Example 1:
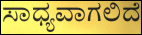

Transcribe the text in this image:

ಸಾಧ್ಯವಾಗಲಿದೆ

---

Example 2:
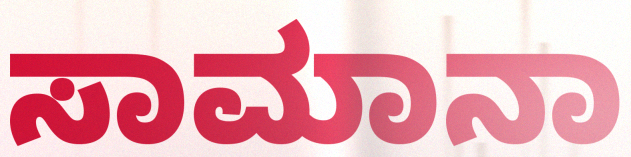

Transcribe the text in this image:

ಸಾಮಾನಾ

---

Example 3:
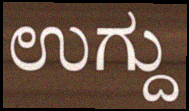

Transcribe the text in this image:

ಉಗ್ದು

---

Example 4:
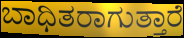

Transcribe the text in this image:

ಬಾಧಿತರಾಗುತ್ತಾರೆ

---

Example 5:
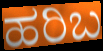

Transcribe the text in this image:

ಹರಿಬ